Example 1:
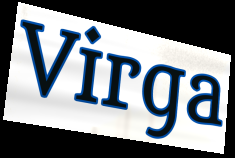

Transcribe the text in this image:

Virga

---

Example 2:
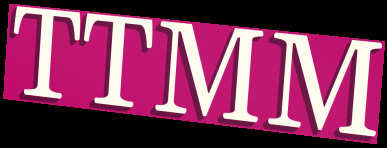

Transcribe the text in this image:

TTMM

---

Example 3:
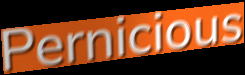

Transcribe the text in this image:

Pernicious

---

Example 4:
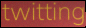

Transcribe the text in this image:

twitting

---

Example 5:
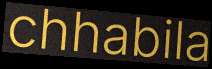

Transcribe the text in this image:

chhabila